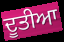
ਦੂਤੀਆ